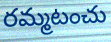
రమ్మటంచు